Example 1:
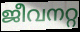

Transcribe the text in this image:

ജീവനറ്റ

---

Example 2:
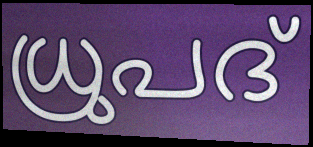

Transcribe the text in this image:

ധ്രുപദ്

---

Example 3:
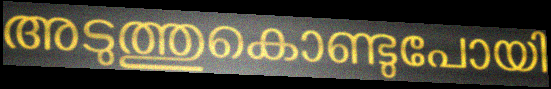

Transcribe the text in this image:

അടുത്തുകൊണ്ടുപോയി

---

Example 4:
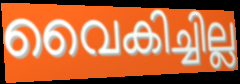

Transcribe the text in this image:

വൈകിച്ചില്ല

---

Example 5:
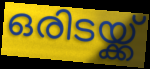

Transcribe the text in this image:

ഒരിടയ്ക്ക്